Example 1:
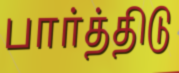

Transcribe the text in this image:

பார்த்திடு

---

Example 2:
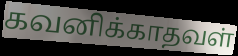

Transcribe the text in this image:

கவனிக்காதவள்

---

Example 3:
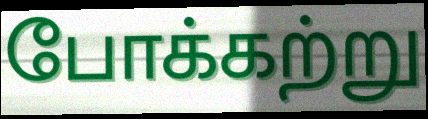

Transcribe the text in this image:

போக்கற்று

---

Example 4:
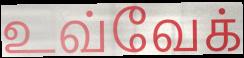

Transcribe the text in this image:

உவ்வேக்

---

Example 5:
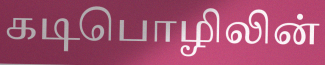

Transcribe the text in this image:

கடிபொழிலின்